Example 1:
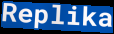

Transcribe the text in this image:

Replika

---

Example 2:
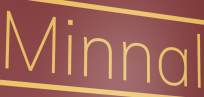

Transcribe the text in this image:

Minnal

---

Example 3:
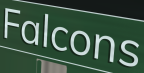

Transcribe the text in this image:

Falcons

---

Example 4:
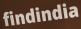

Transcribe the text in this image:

findindia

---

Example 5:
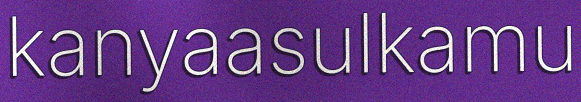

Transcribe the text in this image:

kanyaasulkamu